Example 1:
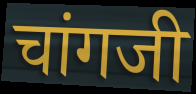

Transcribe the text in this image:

चांगजी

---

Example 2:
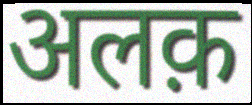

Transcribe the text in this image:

अलक़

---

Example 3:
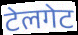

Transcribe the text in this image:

टेलगेट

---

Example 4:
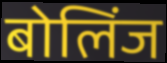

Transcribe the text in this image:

बोलिंज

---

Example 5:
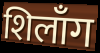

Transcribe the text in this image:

शिलाँग